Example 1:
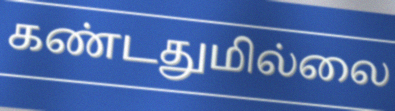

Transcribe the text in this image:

கண்டதுமில்லை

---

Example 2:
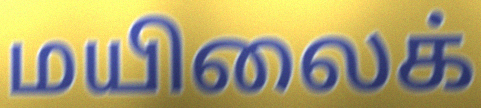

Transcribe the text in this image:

மயிலைக்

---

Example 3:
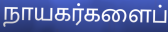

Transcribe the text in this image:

நாயகர்களைப்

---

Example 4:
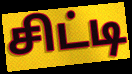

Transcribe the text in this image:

சிட்டி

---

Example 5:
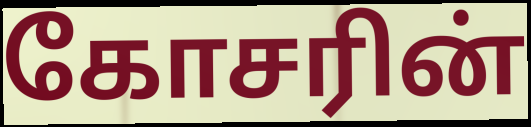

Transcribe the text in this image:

கோசரின்